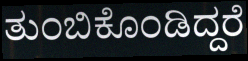
ತುಂಬಿಕೊಂಡಿದ್ದರೆ